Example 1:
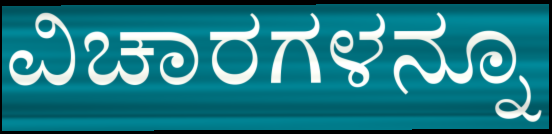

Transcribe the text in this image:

ವಿಚಾರಗಳನ್ನೂ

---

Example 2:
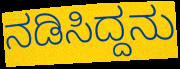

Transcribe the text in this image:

ನಡಿಸಿದ್ದನು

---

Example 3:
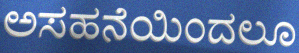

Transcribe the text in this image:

ಅಸಹನೆಯಿಂದಲೂ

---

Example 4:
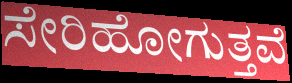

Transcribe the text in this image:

ಸೇರಿಹೋಗುತ್ತವೆ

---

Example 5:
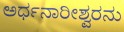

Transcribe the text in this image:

ಅರ್ಧನಾರೀಶ್ವರನು